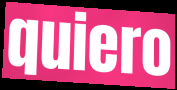
quiero